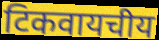
टिकवायचीय